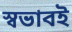
স্বভাবই